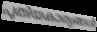
പുതിയകാര്യങ്ങൾ